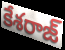
కేశరాజ్